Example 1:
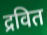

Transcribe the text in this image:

द्रवित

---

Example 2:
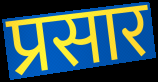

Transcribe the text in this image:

प्रसार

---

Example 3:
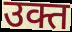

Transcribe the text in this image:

उक्त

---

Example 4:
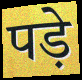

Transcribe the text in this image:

पड़े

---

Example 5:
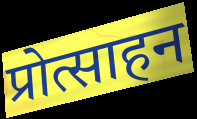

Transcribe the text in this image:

प्रोत्साहन